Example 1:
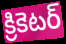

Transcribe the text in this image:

క్రికెటర్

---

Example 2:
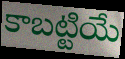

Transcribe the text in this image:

కాబట్టియే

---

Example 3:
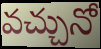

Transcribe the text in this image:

వచ్చునో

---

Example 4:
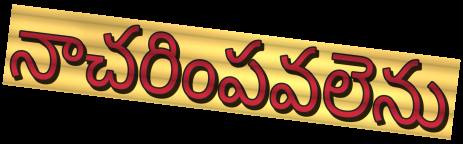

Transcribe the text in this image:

నాచరింపవలెను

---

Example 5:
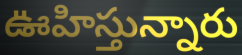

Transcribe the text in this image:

ఊహిస్తున్నారు